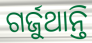
ଗର୍ଜୁଥାନ୍ତି